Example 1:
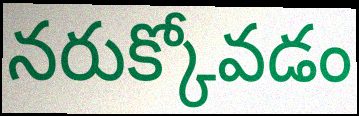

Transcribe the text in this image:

నరుక్కోవడం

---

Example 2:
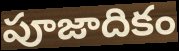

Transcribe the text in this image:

పూజాదికం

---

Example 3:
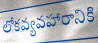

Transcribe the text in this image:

లోకవ్యవహారానికి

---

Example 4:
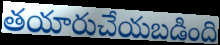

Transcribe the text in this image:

తయారుచేయబడింది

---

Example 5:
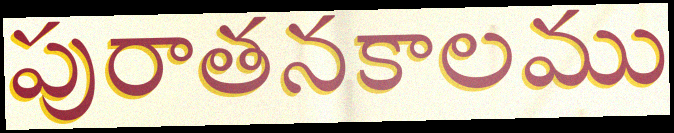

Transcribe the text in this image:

పురాతనకాలము